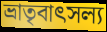
ভ্রাতৃবাৎসল্য